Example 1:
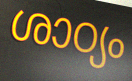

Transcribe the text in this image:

ശാഠ്യം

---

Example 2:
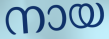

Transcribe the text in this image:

നായ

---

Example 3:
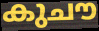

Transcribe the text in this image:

കുചൗ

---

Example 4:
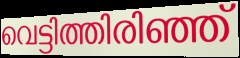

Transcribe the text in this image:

വെട്ടിത്തിരിഞ്ഞ്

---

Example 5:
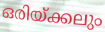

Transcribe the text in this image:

ഒരിയ്ക്കലും